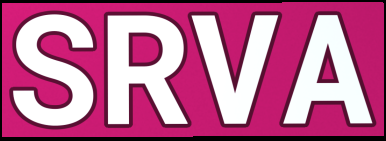
SRVA